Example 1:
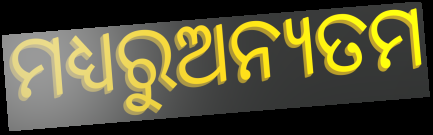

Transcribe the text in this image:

ମଧ୍ୟରୁଅନ୍ୟତମ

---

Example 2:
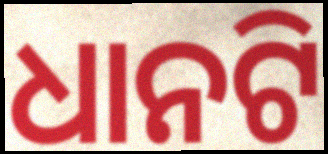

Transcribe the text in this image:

ଧାନଟି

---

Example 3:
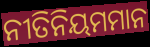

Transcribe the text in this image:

ନୀତିନିୟମମାନ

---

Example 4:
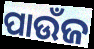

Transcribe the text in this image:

ପାଉଁଜ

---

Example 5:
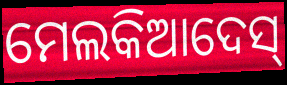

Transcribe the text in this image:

ମେଲକିଆଦେସ୍